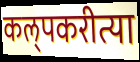
कल्पकरीत्या